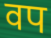
वप